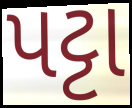
પટ્ટા